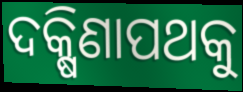
ଦକ୍ଷିଣାପଥକୁ